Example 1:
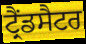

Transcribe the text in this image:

ਟ੍ਰੈਂਡਸੈਟਰ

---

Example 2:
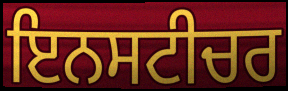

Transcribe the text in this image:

ਇਨਸਟੀਚਰ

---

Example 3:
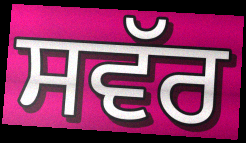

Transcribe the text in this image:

ਸਵੱਰ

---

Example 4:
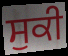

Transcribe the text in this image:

ਸੁਕੀ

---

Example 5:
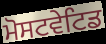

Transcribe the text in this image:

ਮੋਸਟਵੇਟਿਡ